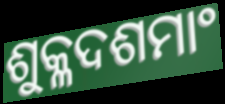
ଶୁକ୍ଳଦଶମାଂ